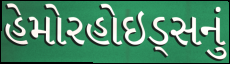
હેમોરહોઇડ્સનું